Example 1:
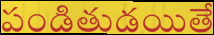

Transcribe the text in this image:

పండితుడయితే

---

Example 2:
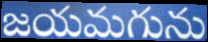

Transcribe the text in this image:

జయమగును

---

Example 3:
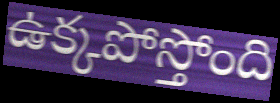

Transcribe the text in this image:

ఉక్కపోస్తోంది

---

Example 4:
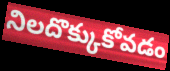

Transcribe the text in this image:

నిలదొక్కుకోవడం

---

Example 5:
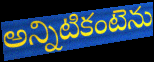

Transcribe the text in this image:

అన్నిటికంటెను